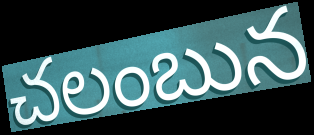
చలంబున